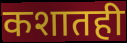
कशातही